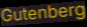
Gutenberg